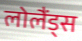
लोलैंड्स